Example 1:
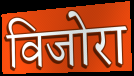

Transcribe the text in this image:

विजोरा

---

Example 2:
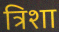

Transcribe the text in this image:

त्रिशा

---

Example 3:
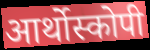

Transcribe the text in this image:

आर्थोस्कोपी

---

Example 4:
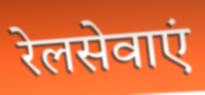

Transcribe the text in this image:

रेलसेवाएं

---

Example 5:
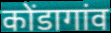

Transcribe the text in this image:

कोंडागांव